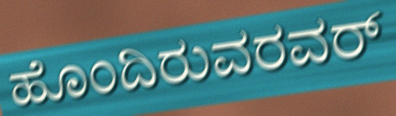
ಹೊಂದಿರುವರವರ್